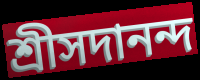
শ্রীসদানন্দ